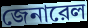
জেনারেল